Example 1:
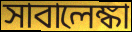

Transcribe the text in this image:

সাবালেঙ্কা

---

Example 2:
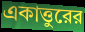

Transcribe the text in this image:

একাত্তুরের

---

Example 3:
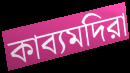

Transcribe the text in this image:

কাব্যমদিরা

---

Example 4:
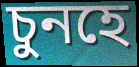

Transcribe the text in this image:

চুনহে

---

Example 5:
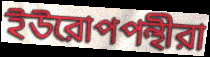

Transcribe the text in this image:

ইউরোপপন্থীরা